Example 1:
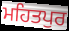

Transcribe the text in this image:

ਮਹਿਤਪੁਰ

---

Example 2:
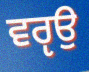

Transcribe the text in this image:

ਵਰੵਉ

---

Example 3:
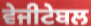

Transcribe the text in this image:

ਵੇਜੀਟੇਬਲ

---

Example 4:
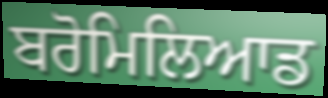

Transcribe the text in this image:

ਬਰੋਮਿਲਿਆਡ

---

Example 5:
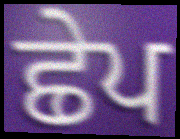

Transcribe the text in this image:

ਛੇਪ